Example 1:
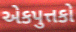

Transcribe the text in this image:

એકપુત્તકો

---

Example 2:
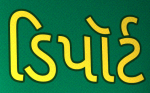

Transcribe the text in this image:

ડિપૉર્ટ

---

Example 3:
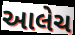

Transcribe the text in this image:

આલેચ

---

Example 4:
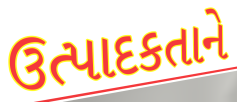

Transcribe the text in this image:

ઉત્પાદકતાને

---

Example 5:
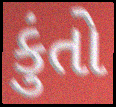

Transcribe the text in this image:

કુંતો